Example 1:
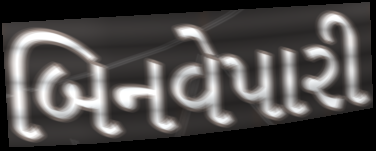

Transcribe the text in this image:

બિનવેપારી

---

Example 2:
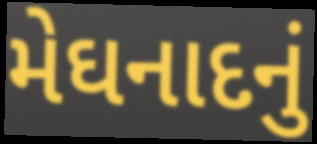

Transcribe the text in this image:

મેઘનાદનું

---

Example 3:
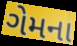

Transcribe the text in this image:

ગેમના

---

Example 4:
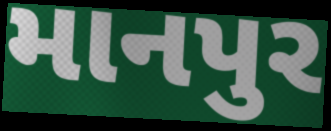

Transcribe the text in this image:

માનપુર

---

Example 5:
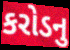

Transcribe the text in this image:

કરોડનુ